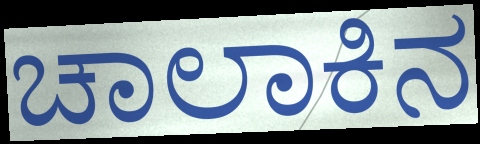
ಚಾಲಾಕಿನ